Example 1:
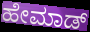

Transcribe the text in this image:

ಹೇಮಾಡ್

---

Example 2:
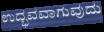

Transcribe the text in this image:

ಉದ್ಭವವಾಗುವುದು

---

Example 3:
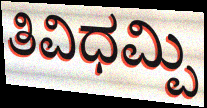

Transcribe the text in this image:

ತಿವಿಧಮ್ಪಿ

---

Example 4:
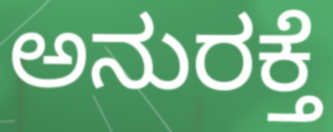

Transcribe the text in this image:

ಅನುರಕ್ತೆ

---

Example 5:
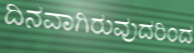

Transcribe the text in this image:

ದಿನವಾಗಿರುವುದರಿಂದ